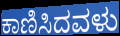
ಕಾಣಿಸಿದವಳು